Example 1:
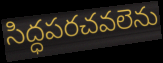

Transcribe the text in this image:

సిద్ధపరచవలెను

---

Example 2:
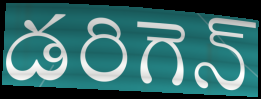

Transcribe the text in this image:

డరిగెన్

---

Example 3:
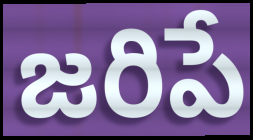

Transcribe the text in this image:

జరిపే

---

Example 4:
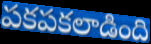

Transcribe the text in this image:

పకపకలాడింది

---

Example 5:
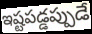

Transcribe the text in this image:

ఇష్టపడ్డప్పుడే